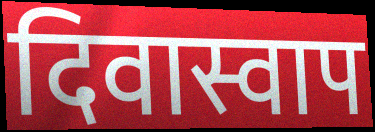
दिवास्वाप